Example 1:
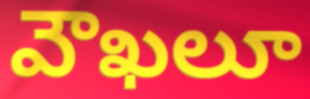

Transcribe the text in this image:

వౌఖలూ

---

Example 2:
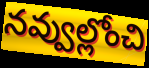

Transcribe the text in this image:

నవ్వుల్లోంచి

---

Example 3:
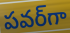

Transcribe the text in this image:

పవర్‌గా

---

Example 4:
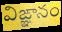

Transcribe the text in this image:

విఙ్ఞానం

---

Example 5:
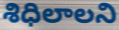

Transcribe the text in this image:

శిధిలాలని